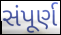
સંપૂર્ણ